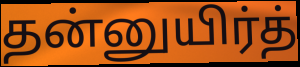
தன்னுயிர்த்